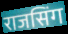
राजसिंग